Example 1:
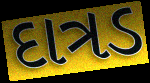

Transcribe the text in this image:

દાત્રડ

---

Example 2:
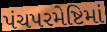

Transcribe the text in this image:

પંચપરમેષ્ટિમાં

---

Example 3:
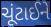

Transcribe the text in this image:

ચૂંટાઈને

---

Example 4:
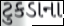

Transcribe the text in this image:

ટુકડાના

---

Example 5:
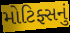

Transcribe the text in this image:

મોટિફ્સનું